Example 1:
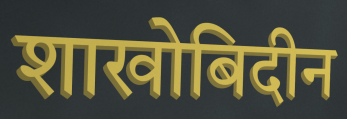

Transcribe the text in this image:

शाखोबिदीन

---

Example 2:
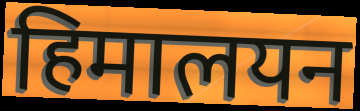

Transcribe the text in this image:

हिमालयन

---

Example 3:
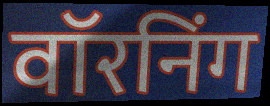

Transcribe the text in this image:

वॉरनिंग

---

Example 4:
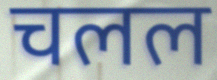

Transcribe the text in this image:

चलल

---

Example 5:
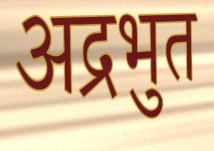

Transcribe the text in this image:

अद्रभुत